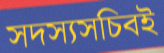
সদস্যসচিবই